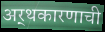
अर्थकारणाची